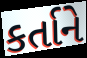
કર્તાને